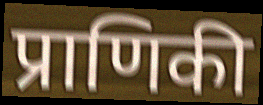
प्राणिकी